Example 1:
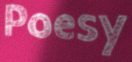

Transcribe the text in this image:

Poesy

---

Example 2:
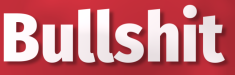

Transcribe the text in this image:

Bullshit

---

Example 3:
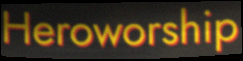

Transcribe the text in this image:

Heroworship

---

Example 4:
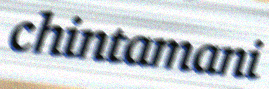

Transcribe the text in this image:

chintamani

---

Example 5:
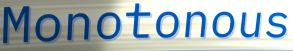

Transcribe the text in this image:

Monotonous